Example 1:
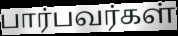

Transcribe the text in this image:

பார்பவர்கள்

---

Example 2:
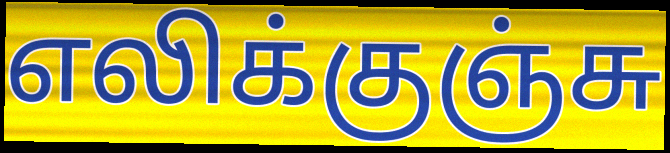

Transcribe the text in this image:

எலிக்குஞ்சு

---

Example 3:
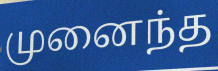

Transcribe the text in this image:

முனைந்த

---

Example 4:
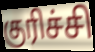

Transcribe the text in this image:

குரிச்சி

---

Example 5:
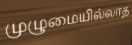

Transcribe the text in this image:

முழுமையில்லாத